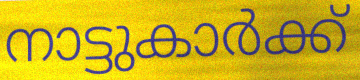
നാട്ടുകാർക്ക്